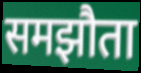
समझौता